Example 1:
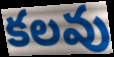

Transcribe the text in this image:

కలవు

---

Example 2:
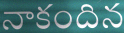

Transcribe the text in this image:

నాకందిన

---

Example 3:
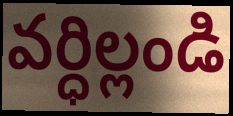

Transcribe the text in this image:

వర్ధిల్లండి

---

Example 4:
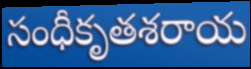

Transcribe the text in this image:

సంధీకృతశరాయ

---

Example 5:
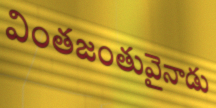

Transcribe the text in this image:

వింతజంతువైనాడు